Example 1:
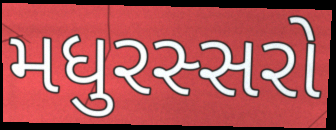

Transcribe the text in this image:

મધુરસ્સરો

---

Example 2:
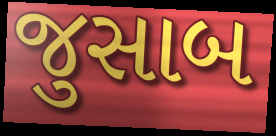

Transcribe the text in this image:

જુસાબ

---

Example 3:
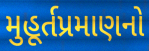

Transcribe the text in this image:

મુહૂર્તપ્રમાણનો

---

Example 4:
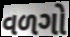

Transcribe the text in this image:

વળગો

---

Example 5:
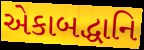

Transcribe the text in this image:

એકાબદ્ધાનિ